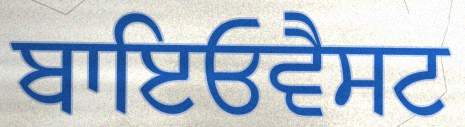
ਬਾਇਓਵੈਸਟ